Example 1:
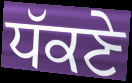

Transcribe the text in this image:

ਧੱਕਣੇ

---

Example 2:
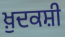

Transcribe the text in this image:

ਖ਼ੁਦਕਸ਼ੀ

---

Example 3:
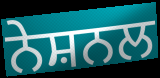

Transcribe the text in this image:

ਨੇਸ਼ਨਲ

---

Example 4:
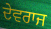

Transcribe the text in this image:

ਦੇਵਰਾਜ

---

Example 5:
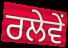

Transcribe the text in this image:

ਰਲੇਵੇਂ